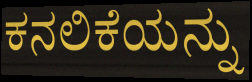
ಕನಲಿಕೆಯನ್ನು